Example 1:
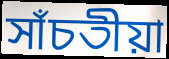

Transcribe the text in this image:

সাঁচতীয়া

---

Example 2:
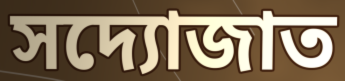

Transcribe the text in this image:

সদ্যোজাত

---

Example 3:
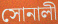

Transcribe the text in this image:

সোনালী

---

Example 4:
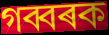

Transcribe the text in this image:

গব্বৰক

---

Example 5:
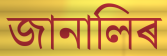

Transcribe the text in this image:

জানালিৰ